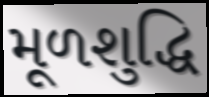
મૂળશુદ્ધિ